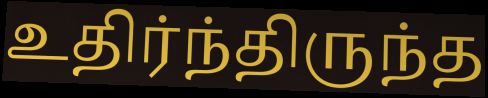
உதிர்ந்திருந்த